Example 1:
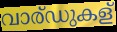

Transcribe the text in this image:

വാര്ഡുകള്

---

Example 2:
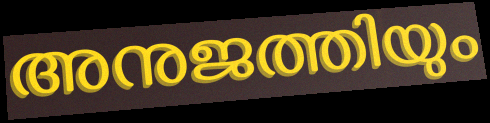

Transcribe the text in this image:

അനുജത്തിയും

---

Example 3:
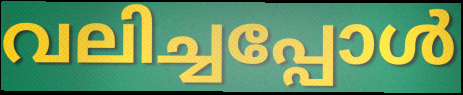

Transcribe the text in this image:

വലിച്ചപ്പോൾ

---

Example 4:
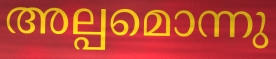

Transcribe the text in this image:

അല്പമൊന്നു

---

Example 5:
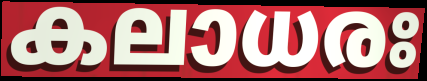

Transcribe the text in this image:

കലാധരഃ